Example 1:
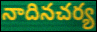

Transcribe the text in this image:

నాదినచర్య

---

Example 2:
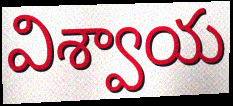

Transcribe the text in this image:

విశ్వాయ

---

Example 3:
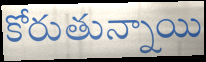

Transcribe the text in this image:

కోరుతున్నాయి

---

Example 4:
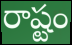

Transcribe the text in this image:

రాష్టం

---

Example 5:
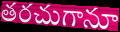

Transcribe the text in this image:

తరచుగానూ